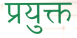
प्रयुक्त